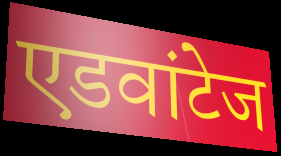
एडवांटेज